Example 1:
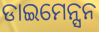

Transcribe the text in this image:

ଡାଇମେନ୍ସନ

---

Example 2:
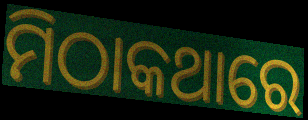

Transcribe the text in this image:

ମିଠାକଥାରେ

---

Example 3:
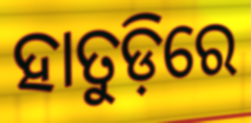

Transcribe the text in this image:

ହାତୁଡ଼ିରେ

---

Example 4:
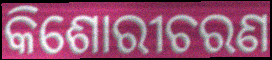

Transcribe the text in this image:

କିଶୋରୀଚରଣ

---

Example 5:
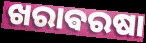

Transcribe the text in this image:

ଖରାଵରଷା